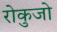
रोकुजो